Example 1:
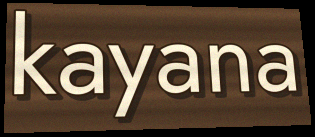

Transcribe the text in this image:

kayana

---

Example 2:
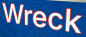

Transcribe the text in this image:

Wreck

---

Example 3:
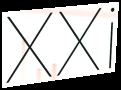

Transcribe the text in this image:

XXi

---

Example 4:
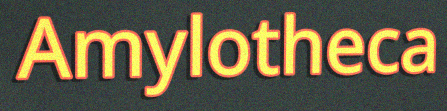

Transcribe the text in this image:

Amylotheca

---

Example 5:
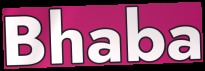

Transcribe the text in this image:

Bhaba